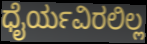
ಧೈರ್ಯವಿರಲಿಲ್ಲ